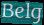
Belg